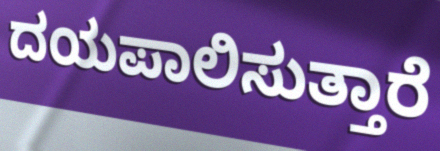
ದಯಪಾಲಿಸುತ್ತಾರೆ